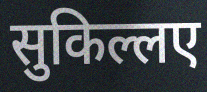
सुकिल्लए